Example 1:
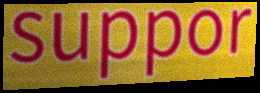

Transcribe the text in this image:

suppor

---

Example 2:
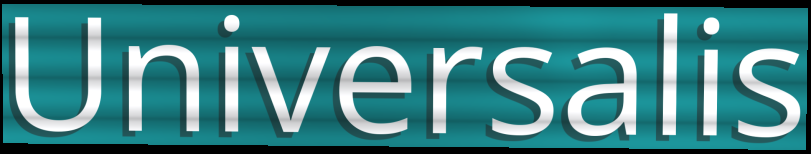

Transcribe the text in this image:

Universalis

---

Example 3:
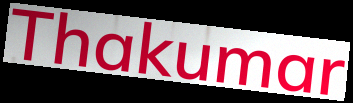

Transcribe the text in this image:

Thakumar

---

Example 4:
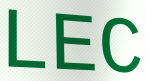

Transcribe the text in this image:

LEC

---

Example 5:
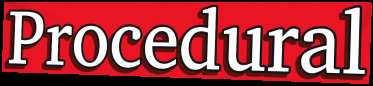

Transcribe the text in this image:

Procedural